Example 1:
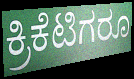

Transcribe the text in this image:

ಕ್ರಿಕೆಟಿಗರೂ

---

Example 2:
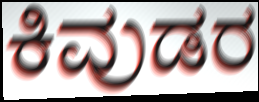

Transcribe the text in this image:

ಕಿವುಡರ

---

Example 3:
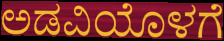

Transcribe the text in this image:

ಅಡವಿಯೊಳಗೆ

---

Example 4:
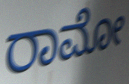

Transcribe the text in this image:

ರಾಮೋ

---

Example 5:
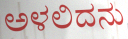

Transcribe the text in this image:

ಅಳಲಿದನು